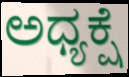
ಅಧ್ಯಕ್ಷೆ